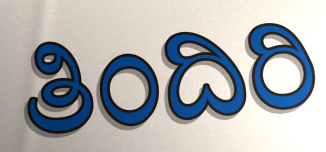
ತಿಂದಿರಿ